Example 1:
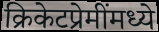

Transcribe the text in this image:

क्रिकेटप्रेमींमध्ये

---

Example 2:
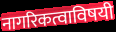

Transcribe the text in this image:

नागरिकत्वाविषयी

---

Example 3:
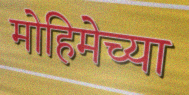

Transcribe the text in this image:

मोहिमेच्या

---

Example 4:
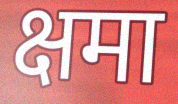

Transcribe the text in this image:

क्षमा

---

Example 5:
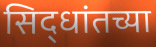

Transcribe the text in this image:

सिद्धांतच्या